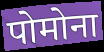
पोमोना